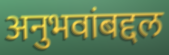
अनुभवांबद्दल